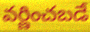
వర్ణించబడే